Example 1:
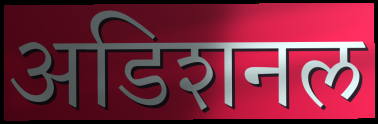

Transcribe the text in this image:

अडिशनल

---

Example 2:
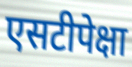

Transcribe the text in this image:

एसटीपेक्षा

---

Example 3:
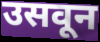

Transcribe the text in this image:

उसवून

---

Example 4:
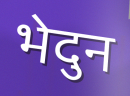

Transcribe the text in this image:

भेदुन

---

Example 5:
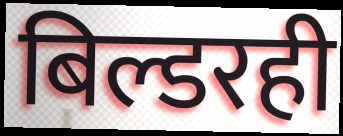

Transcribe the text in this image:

बिल्डरही